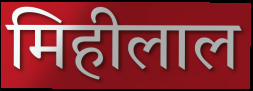
मिहीलाल